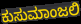
ಕುಸುಮಾಂಜಲಿ